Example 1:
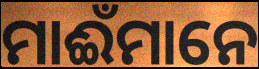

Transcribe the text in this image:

ମାଈଁମାନେ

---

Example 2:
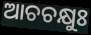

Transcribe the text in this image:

ଆଚଚକ୍ଷୁଃ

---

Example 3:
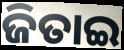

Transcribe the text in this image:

ଜିତାଇ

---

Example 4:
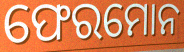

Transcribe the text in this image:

ଫେରମୋନ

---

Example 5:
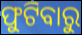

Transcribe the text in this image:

ଫୁଟିବାରୁ